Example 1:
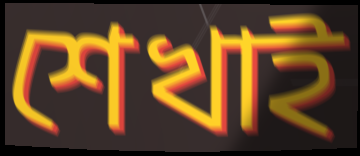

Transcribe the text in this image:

শেখাই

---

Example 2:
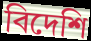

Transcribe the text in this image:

বিদেশি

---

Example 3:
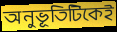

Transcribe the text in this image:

অনুভূতিটিকেই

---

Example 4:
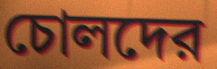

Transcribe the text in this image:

চোলদের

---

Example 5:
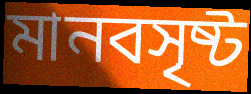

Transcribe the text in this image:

মানবসৃষ্ট